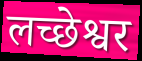
लच्छेश्वर